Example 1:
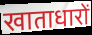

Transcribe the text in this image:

खाताधारों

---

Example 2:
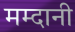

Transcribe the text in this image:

मम्दानी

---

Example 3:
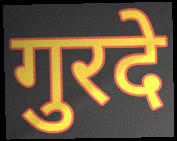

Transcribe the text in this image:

गुरदे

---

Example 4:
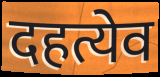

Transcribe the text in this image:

दहत्येव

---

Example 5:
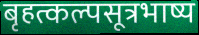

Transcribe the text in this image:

बृहत्कल्पसूत्रभाष्य